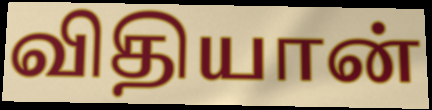
விதியான்